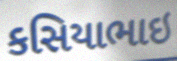
કસિયાભાઇ